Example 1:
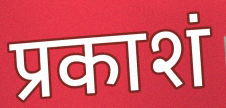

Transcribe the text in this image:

प्रकाशं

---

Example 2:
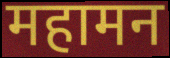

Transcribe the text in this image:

महामन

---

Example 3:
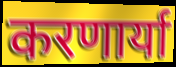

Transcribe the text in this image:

करणार्या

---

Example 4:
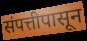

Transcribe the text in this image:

संपत्तीपासून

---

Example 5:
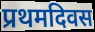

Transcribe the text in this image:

प्रथमदिवस